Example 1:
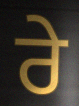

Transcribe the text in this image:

ਰੇ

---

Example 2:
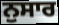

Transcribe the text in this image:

ਨੁਸਾਰ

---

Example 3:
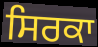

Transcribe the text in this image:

ਸਿਰਕਾ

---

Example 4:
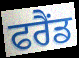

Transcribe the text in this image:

ਫਰੈਂਡ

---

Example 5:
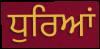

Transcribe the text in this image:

ਧੁਰਿਆਂ